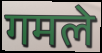
गमले